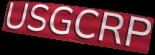
USGCRP